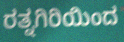
ರತ್ನಗಿರಿಯಿಂದ